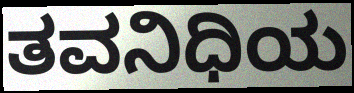
ತವನಿಧಿಯ